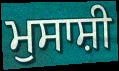
ਮੁਸਾਸ਼ੀ